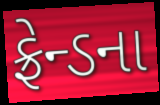
ફ્રેન્ડના